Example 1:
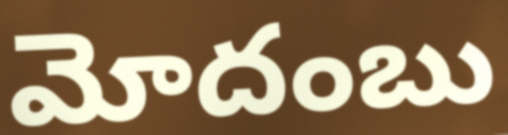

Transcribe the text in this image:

మోదంబు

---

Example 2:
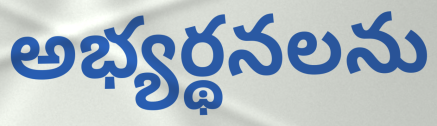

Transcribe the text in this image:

అభ్యర్థనలను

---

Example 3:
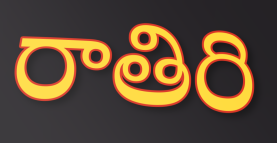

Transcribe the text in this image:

రాతిరి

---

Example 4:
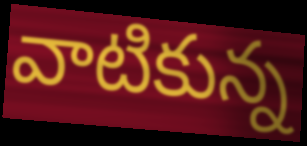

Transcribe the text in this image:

వాటికున్న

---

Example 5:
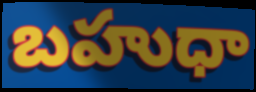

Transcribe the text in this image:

బహుధా